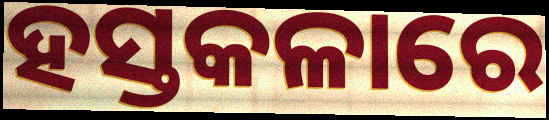
ହସ୍ତକଳାରେ